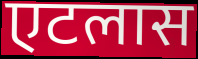
एटलास